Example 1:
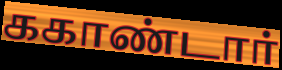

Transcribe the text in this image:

ககாண்டார்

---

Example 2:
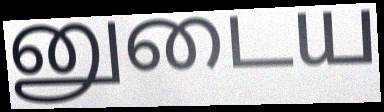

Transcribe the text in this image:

னுடைய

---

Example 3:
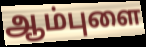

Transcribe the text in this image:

ஆம்புளை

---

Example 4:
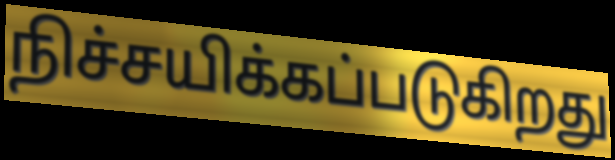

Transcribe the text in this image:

நிச்சயிக்கப்படுகிறது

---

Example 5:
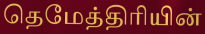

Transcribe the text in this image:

தெமேத்திரியின்